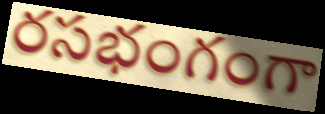
రసభంగంగా